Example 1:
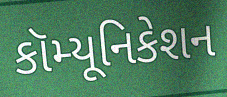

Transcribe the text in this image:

કૉમ્યૂનિકેશન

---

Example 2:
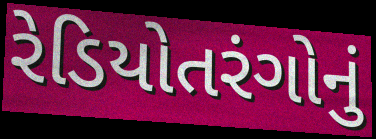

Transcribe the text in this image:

રેડિયોતરંગોનું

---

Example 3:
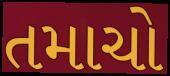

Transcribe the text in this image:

તમાચો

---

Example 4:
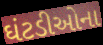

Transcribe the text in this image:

ઘંટડીઓના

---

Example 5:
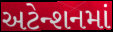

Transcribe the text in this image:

અટેન્શનમાં